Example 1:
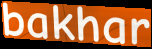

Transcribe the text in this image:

bakhar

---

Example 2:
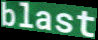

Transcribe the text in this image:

blast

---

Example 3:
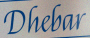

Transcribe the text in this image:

Dhebar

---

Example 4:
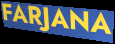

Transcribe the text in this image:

FARJANA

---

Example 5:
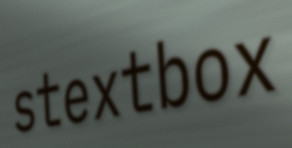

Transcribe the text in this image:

stextbox